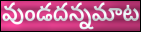
వుండదన్నమాట